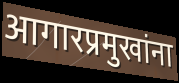
आगारप्रमुखांना